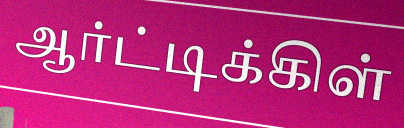
ஆர்ட்டிக்கிள்